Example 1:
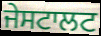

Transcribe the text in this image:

ਜੇਸਟਾਲਟ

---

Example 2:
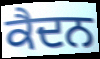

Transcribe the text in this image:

ਕੈਦਨ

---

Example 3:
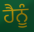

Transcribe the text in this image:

ਹੈਨੂੰ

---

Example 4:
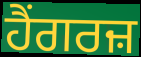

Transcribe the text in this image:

ਹੈਂਗਰਜ਼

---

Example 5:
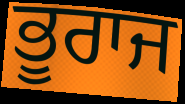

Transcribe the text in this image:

ਭੂਰਾਜ